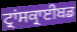
ਟ੍ਰਾਂਸਕ੍ਰਾਈਬਡ